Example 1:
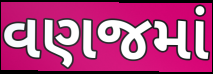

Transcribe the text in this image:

વણજમાં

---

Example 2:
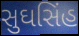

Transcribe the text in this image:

સુઘસિંહ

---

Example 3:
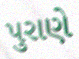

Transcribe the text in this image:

પુરાણે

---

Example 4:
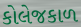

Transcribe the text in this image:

કોલેજકાળ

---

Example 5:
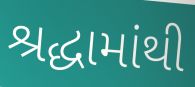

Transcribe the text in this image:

શ્રદ્ધામાંથી